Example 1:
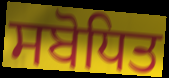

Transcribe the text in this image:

ਸਬੋਧਿਤ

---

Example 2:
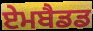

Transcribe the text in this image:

ਏਮਬੈਡਡ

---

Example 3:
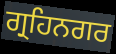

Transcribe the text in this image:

ਗ੍ਰਹਿਨਗਰ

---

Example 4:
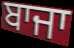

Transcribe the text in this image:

ਬਾਜਾ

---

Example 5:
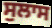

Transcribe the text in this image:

ਸੁਲਾਸ